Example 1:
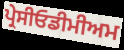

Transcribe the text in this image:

ਪ੍ਰੇਸੀਓਡੀਮੀਅਮ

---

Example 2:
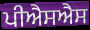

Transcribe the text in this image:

ਪੀਐਸਐਸ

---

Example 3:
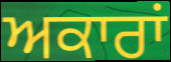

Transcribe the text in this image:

ਅਕਾਰਾਂ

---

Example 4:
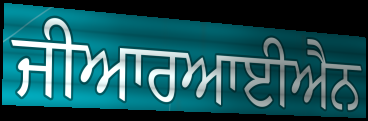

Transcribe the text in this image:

ਜੀਆਰਆਈਐਨ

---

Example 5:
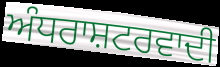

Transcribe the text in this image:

ਅੰਧਰਾਸ਼ਟਰਵਾਦੀ